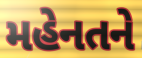
મહેનતને